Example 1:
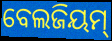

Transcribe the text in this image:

ବେଲଜିୟମ୍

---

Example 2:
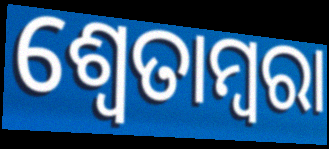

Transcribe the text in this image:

ଶ୍ୱେତାମ୍ବରା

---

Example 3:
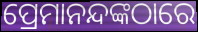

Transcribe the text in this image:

ପ୍ରେମାନନ୍ଦଙ୍କଠାରେ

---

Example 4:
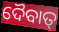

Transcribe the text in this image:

ଦୈବାତ୍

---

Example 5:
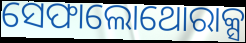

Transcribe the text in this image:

ସେଫାଲୋଥୋରାକ୍ସ